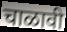
चाळावी